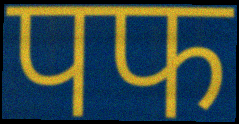
पफ